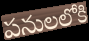
పనులలోకి